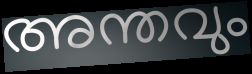
അന്തവും